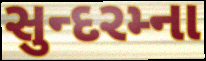
સુન્દરમ્ના